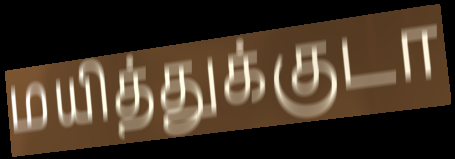
மயித்துக்குடா